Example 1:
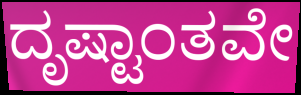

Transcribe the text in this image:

ದೃಷ್ಟಾಂತವೇ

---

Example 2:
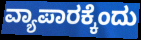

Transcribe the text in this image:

ವ್ಯಾಪಾರಕ್ಕೆಂದು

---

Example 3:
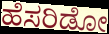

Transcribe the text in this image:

ಹೆಸರಿಡೋ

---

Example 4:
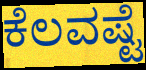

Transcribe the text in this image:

ಕೆಲವಷ್ಟೆ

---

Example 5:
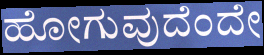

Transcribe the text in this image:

ಹೋಗುವುದೆಂದೇ